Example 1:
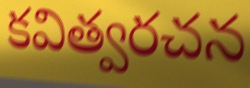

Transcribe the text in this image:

కవిత్వరచన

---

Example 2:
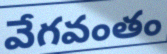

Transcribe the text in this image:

వేగవంతం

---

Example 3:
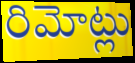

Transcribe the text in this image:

రిమోట్లు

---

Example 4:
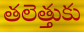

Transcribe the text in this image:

తలెత్తుకు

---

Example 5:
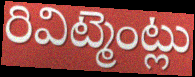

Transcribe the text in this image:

రివిట్మెంట్లు